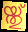
യ്തു്